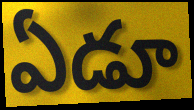
ఏడూ